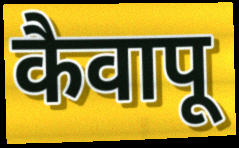
कैवापू